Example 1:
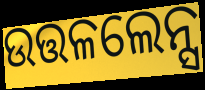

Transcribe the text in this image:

ଉତ୍ତଳଲେନ୍ସ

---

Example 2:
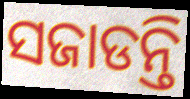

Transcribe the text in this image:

ସଜାଡନ୍ତି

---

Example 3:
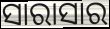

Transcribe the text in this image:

ସାରାସାର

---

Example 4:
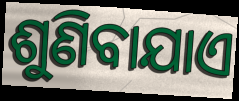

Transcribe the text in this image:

ଶୁଣିବାଯାଏ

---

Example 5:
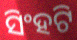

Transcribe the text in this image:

ସିଂହଟି